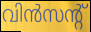
വിൻസന്റ്